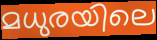
മധുരയിലെ